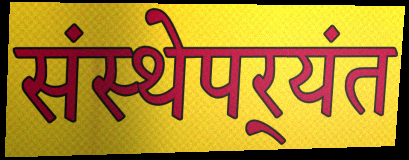
संस्थेपर्यंत